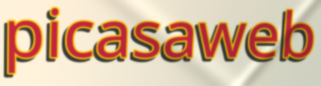
picasaweb